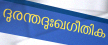
ദുരന്തദുഃഖഗീതിക